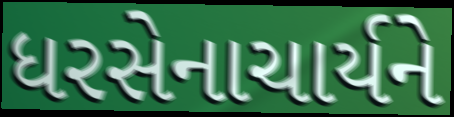
ધરસેનાચાર્યને